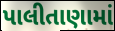
પાલીતાણામાં